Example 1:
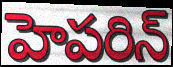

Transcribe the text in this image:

హెపరిన్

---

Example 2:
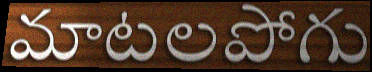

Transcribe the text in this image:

మాటలపోగు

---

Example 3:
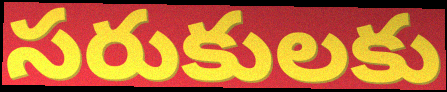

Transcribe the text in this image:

సరుకులకు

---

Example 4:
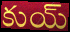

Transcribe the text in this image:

కుయ్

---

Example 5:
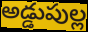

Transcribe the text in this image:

అడ్డుపుల్ల